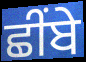
ਛੀਂਬੇ